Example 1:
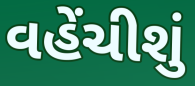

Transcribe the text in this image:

વહેંચીશું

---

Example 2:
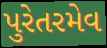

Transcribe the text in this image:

પુરેતરમેવ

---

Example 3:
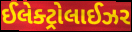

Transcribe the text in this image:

ઈલેક્ટ્રોલાઈઝર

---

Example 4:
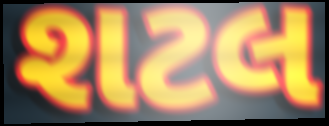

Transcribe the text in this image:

શટલ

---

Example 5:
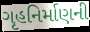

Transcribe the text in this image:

ગૃહનિર્માણની